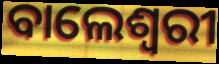
ବାଲେଶ୍ୱରୀ